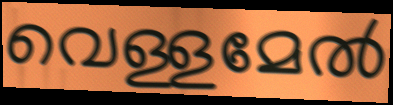
വെള്ളമേൽ